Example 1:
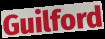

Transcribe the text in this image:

Guilford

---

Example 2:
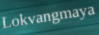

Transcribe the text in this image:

Lokvangmaya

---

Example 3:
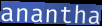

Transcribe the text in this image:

anantha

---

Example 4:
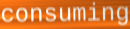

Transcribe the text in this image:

consuming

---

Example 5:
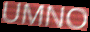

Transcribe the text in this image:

UMNO